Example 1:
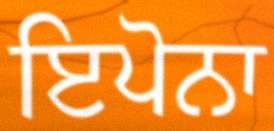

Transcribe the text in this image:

ਇਪੋਨਾ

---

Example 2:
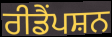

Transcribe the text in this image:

ਰੀਡੈਂਪਸ਼ਨ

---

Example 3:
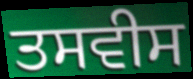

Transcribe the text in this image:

ਤਸਵੀਸ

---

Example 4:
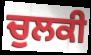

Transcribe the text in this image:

ਚੁਲਕੀ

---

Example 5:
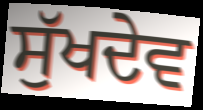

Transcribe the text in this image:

ਸੁੱਖਦੇਵ